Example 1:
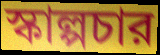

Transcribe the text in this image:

স্কাল্পচার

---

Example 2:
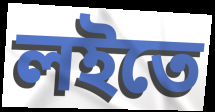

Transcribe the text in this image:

লইতে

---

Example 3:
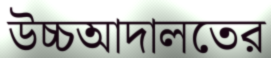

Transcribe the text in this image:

উচ্চআদালতের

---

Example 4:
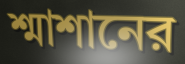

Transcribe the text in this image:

শ্মাশানের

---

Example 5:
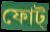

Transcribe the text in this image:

ফোট্